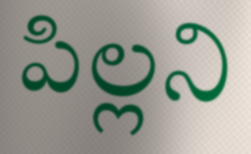
పిల్లని